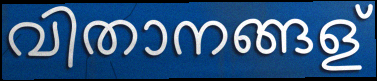
വിതാനങ്ങള്